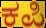
ಕಪಿ